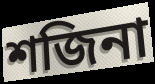
শজিনা